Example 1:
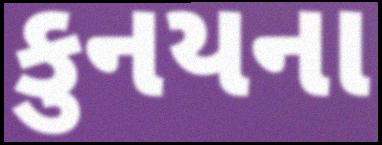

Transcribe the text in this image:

કુનયના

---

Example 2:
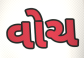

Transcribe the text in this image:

વોચ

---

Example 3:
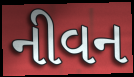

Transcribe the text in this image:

નીવન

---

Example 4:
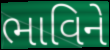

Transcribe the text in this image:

ભાવિને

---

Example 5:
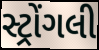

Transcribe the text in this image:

સ્ટ્રોંગલી